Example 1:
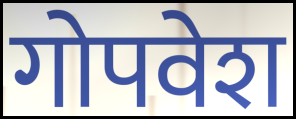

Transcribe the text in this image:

गोपवेश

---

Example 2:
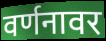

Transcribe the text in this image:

वर्णनावर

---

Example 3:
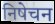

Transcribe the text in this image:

निषेचन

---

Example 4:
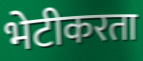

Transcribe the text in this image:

भेटीकरता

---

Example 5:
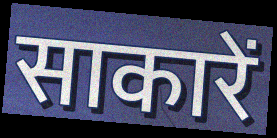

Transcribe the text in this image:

साकारें